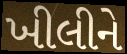
ખીલીને